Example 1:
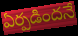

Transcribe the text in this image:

ఏర్పడిందనే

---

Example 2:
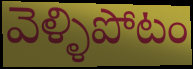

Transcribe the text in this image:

వెళ్ళిపోటం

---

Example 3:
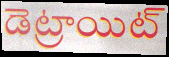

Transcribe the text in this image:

డెట్రాయిట్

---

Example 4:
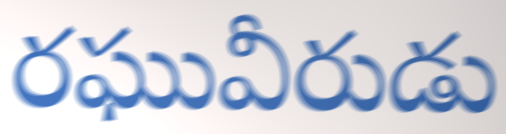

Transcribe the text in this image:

రఘువీరుడు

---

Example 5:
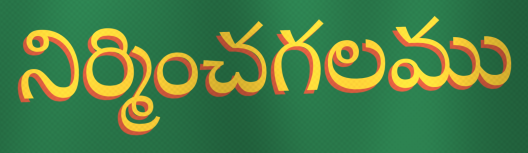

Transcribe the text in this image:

నిర్మించగలము